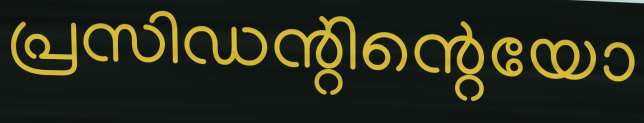
പ്രസിഡന്റിന്റെയോ